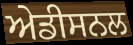
ਅੇਡੀਸਨਲ